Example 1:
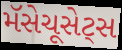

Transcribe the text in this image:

મૅસેચૂસેટ્સ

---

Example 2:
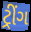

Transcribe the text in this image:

ટ્રીંગ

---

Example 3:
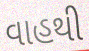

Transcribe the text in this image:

વાહથી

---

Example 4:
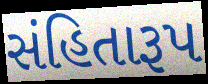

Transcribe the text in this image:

સંહિતારૂપ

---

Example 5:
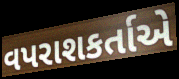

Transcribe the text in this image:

વપરાશકર્તાએ